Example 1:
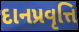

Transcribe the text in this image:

દાનપ્રવૃત્તિ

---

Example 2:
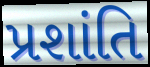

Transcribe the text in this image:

પ્રશાંતિ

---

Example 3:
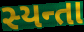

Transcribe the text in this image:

સ્યન્તા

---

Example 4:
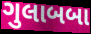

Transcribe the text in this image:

ગુલાબબા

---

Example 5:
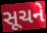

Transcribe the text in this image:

સૂચને